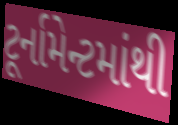
ટૂર્નામેન્ટમાંથી